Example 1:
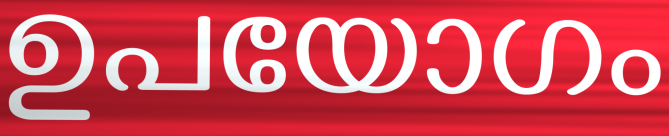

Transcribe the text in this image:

ഉപയോഗം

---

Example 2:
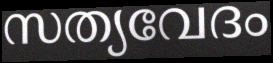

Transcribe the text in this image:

സത്യവേദം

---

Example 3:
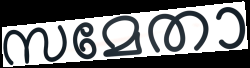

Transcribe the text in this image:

സമേതാ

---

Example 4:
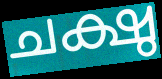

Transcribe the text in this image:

ചക്ഷു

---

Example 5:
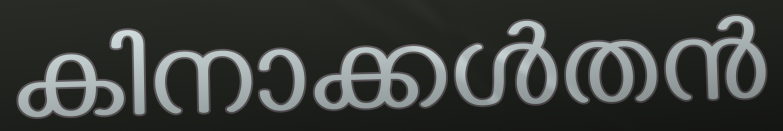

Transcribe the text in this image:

കിനാക്കൾതൻ